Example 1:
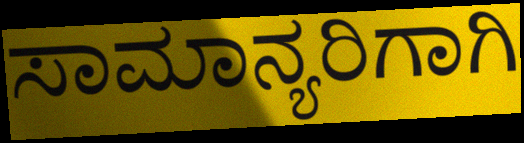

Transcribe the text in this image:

ಸಾಮಾನ್ಯರಿಗಾಗಿ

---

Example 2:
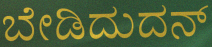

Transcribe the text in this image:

ಬೇಡಿದುದನ್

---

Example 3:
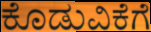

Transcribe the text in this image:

ಕೊಡುವಿಕೆಗೆ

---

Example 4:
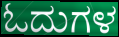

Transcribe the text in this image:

ಓದುಗಳ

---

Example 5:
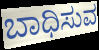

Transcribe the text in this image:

ಬಾಧಿಸುವ